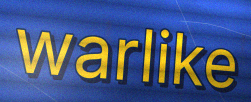
warlike